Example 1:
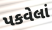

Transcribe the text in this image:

પકવેલાં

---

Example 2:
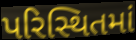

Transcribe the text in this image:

પરિસ્થિતમાં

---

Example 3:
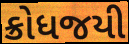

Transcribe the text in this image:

ક્રોધજયી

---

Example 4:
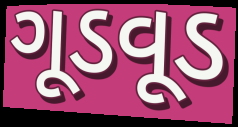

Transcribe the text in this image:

ગૂડવૂડ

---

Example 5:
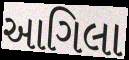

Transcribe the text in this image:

આગિલા